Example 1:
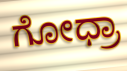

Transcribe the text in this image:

ಗೋಧ್ರಾ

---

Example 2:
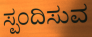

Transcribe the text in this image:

ಸ್ಪಂದಿಸುವ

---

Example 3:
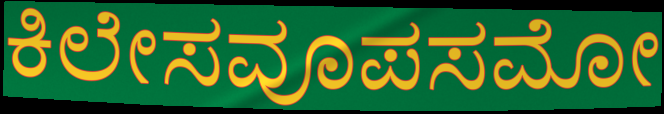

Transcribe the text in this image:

ಕಿಲೇಸವೂಪಸಮೋ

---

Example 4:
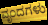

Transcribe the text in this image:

ವೃಂದಗಳು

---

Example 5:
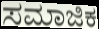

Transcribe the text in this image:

ಸಮಾಜಿಕ